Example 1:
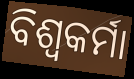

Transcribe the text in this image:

ବିଶ୍ବକର୍ମା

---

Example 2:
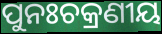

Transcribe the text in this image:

ପୁନଃଚକ୍ରଣୀୟ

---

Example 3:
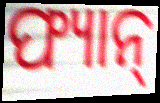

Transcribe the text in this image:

ଫ୍ୟାନ୍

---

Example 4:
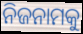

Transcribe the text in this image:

ନିଜନାମକୁ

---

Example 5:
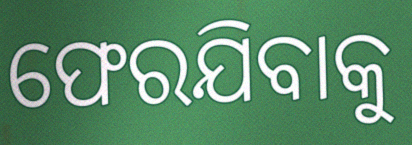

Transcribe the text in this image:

ଫେରଯିବାକୁ